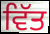
ਵਿੱਤ